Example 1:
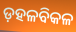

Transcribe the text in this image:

ଡ଼ହଳବିକଳ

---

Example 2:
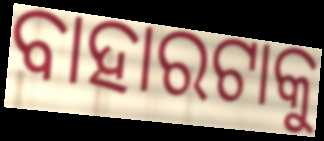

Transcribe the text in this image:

ବାହାରଟାକୁ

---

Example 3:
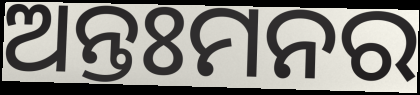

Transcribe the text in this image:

ଅନ୍ତଃମନର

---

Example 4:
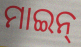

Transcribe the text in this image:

ମାଇନ୍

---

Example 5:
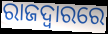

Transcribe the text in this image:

ରାଜଦ୍ୱାରରେ